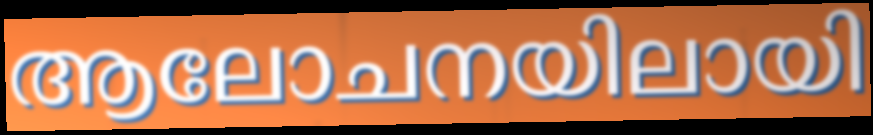
ആലോചനയിലായി